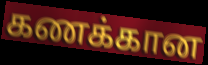
கணக்கான